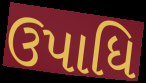
ઉપાધિ